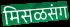
मिसळसंग